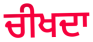
ਚੀਖਦਾ